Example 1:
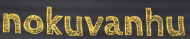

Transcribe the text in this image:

nokuvanhu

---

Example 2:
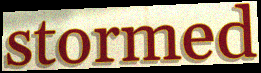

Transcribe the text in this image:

stormed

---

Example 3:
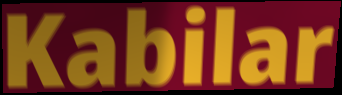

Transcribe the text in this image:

Kabilar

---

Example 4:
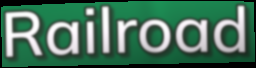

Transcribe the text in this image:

Railroad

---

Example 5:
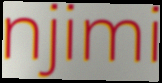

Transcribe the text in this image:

njimi